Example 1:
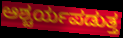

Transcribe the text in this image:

ಆಶ್ಚರ್ಯಪಡುತ್ತ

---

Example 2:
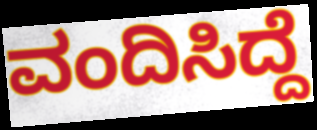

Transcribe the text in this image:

ವಂದಿಸಿದ್ದೆ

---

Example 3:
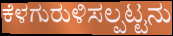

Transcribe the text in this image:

ಕೆಳಗುರುಳಿಸಲ್ಪಟ್ಟನು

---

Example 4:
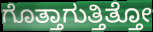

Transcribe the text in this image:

ಗೊತ್ತಾಗುತ್ತಿತ್ತೋ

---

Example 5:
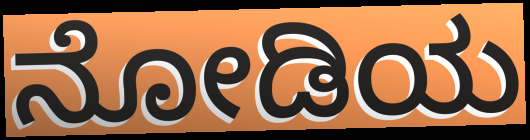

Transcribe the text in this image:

ನೋಡಿಯ